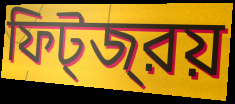
ফিট্‌জ্‌রয়